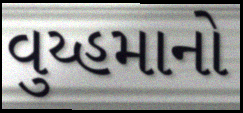
વુય્હમાનો